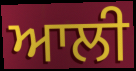
ਆਲੀ